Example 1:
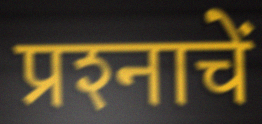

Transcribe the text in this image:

प्रश्नाचें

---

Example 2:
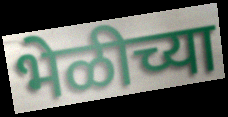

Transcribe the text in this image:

भेळीच्या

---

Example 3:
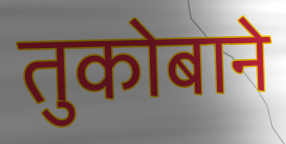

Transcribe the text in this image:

तुकोबाने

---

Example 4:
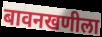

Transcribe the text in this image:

बावनखणीला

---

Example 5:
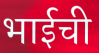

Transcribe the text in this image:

भाईची